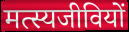
मत्स्यजीवियों